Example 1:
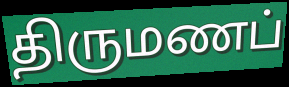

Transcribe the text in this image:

திருமணப்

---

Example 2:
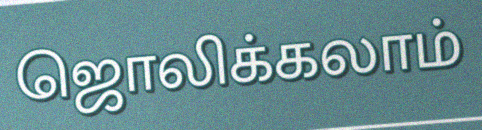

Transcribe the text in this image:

ஜொலிக்கலாம்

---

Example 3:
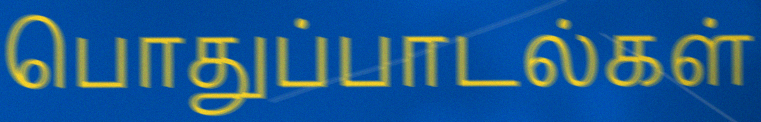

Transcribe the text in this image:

பொதுப்பாடல்கள்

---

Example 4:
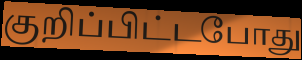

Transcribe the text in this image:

குறிப்பிட்டபோது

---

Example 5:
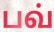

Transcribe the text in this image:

பவ்